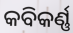
କବିକର୍ଣ୍ଣ